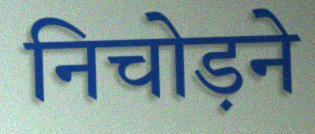
निचोड़ने